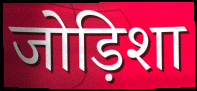
जोड़िशा